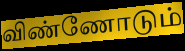
விண்ணோடும்